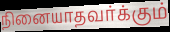
நினையாதவர்க்கும்